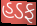
હડફ